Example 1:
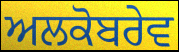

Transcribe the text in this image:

ਅਲਕੋਬਰੇਵ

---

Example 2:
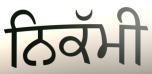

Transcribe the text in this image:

ਨਿਕੱਮੀ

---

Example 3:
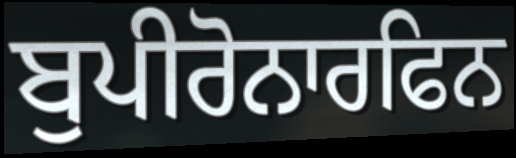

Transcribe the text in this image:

ਬੁਪੀਰੋਨਾਰਫਿਨ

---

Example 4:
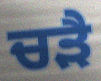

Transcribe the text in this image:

ਚੜੈ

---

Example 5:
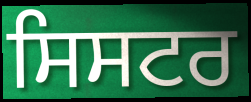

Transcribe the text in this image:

ਸਿਸਟਰ